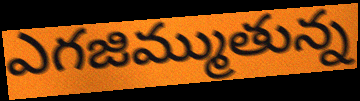
ఎగజిమ్ముతున్న